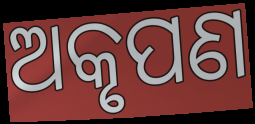
ଅକୃପଣ